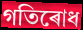
গতিৰোধ